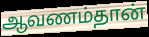
ஆவணம்தான்